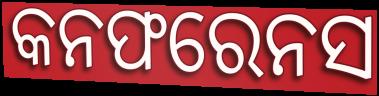
କନଫରେନସ